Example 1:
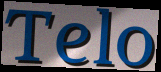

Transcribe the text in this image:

Telo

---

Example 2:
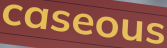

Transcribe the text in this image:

caseous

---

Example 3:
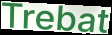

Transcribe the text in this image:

Trebat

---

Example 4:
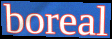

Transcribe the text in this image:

boreal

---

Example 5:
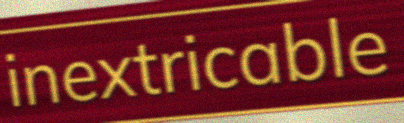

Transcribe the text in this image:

inextricable